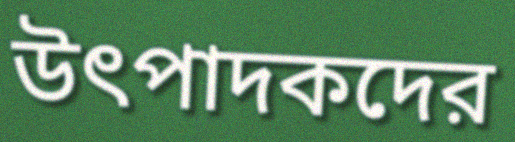
উৎপাদকদের